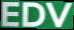
EDV